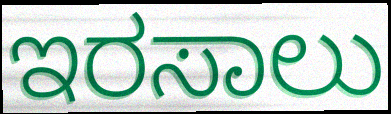
ಇರಸಾಲು